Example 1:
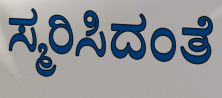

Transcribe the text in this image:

ಸ್ಮರಿಸಿದಂತೆ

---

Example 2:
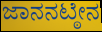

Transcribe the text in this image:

ಜಾನನಟ್ಠೇನ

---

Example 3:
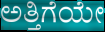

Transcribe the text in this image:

ಅತ್ತಿಗೆಯೇ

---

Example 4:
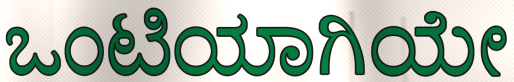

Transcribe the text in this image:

ಒಂಟಿಯಾಗಿಯೇ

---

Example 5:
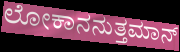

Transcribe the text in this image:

ಲೋಕಾನನುತ್ತಮಾನ್